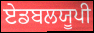
ਏਡਬਲਯੂਪੀ